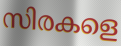
സിരകളെ